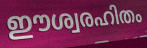
ഈശ്വരഹിതം